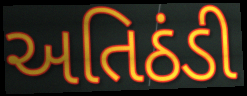
અતિઠંડી